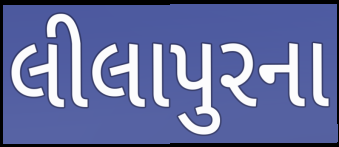
લીલાપુરના